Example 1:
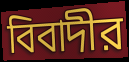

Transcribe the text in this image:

বিবাদীর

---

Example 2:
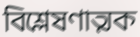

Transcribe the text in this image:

বিশ্লেষণাত্মক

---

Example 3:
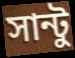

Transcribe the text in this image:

সান্টু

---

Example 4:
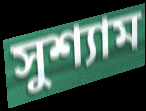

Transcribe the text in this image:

সুশ্যাম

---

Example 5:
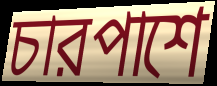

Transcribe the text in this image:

চারপাশে